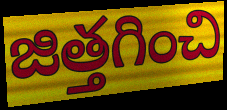
జిత్తగించి